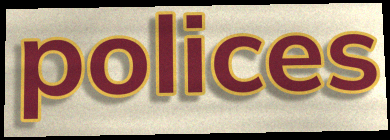
polices